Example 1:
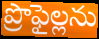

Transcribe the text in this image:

ప్రొఫైల్లను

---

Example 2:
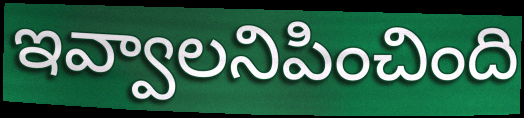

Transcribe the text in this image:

ఇవ్వాలనిపించింది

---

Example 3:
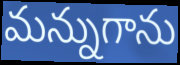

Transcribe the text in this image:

మన్నుగాను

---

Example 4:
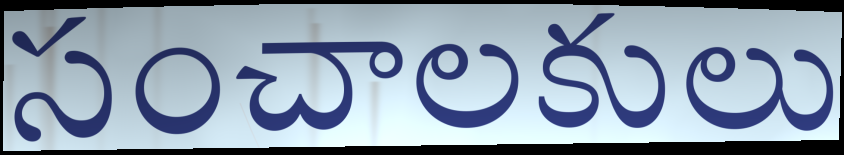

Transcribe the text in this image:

సంచాలకులు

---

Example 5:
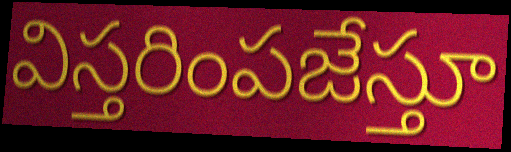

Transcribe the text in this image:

విస్తరింపజేస్తూ